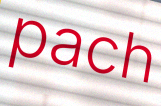
pach